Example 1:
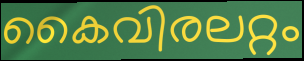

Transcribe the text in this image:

കൈവിരലറ്റം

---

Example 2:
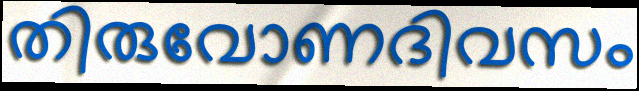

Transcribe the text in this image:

തിരുവോണദിവസം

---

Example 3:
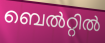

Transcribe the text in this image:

ബെൽറ്റിൽ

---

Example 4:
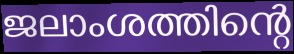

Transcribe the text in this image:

ജലാംശത്തിന്റെ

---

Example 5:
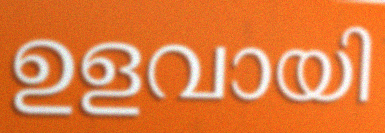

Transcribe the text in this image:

ഉളവായി